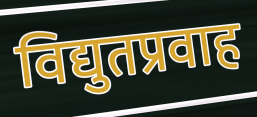
विद्युतप्रवाह